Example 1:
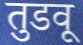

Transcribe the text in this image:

तुडवू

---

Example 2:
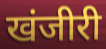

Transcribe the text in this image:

खंजीरी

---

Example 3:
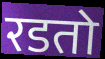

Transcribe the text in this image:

रडतो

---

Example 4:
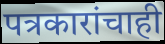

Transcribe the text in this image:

पत्रकारांचाही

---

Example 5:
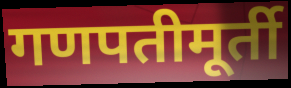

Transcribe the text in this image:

गणपतीमूर्ती